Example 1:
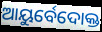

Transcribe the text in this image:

ଆୟୁର୍ବେଦୋକ୍ତ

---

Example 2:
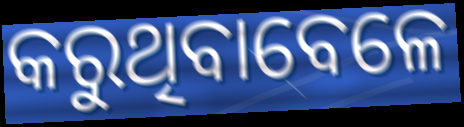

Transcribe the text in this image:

କରୁଥିବାବେଳେ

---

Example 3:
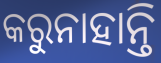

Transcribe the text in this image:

କରୁନାହାନ୍ତି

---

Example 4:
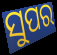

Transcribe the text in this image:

ସୁପର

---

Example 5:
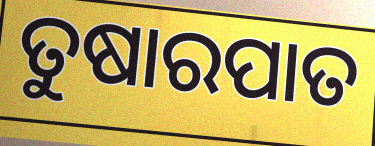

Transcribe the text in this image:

ତୁଷାରପାତ